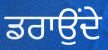
ਡਰਾਉਂਦੇ